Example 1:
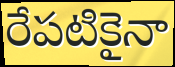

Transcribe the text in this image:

రేపటికైనా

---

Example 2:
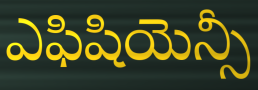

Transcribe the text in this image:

ఎఫిషియెన్సీ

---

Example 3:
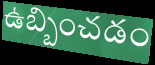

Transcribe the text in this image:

ఉబ్బించడం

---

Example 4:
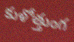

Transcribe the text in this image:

కుళోత్తుంగ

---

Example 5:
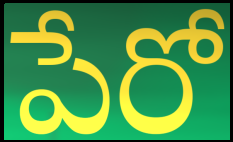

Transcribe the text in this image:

పేరో